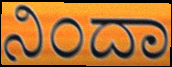
ನಿಂದಾ